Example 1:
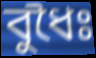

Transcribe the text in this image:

বুধৈঃ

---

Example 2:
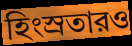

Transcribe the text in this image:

হিংস্রতারও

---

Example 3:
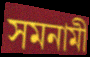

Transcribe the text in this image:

সমনামী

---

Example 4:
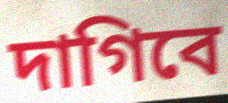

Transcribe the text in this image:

দাগিবে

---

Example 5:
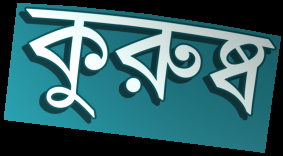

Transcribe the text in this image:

কুরুষ্ব